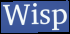
Wisp